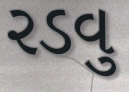
રડવુ